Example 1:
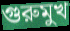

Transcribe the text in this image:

গুরুমুখ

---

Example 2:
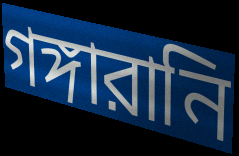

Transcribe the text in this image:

গঙ্গারানি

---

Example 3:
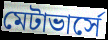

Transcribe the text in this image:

মেটাভার্সে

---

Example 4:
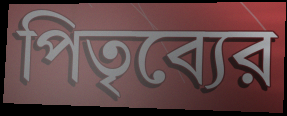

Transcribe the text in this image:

পিতৃব্যের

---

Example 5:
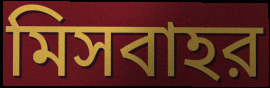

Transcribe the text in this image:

মিসবাহর